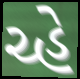
ચ્હે